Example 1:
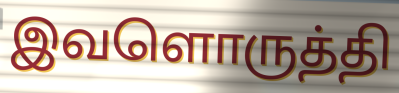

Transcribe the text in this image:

இவளொருத்தி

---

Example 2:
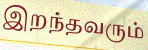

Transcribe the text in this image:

இறந்தவரும்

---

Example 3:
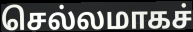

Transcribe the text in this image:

செல்லமாகச்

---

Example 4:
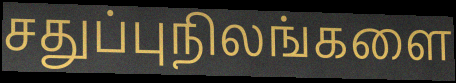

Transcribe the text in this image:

சதுப்புநிலங்களை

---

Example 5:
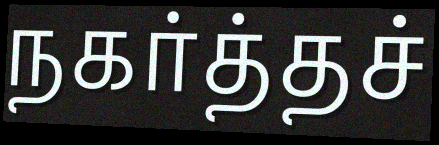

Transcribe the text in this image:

நகர்த்தச்